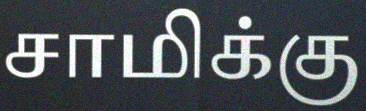
சாமிக்கு